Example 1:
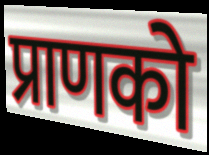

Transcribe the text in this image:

प्राणको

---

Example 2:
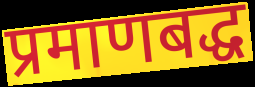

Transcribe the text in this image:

प्रमाणबद्ध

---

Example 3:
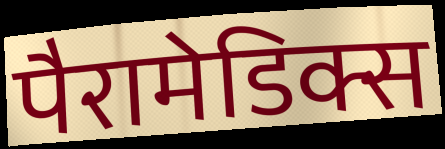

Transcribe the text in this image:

पैरामेडिक्स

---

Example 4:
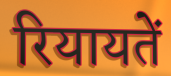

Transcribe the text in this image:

रियायतें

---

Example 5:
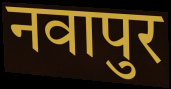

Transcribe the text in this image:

नवापुर